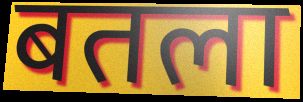
बतला